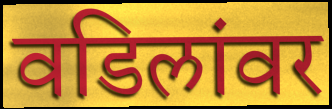
वडिलांवर